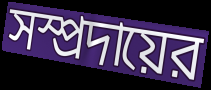
সস্প্রদায়ের